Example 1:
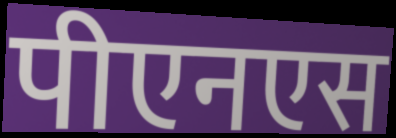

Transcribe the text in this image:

पीएनएस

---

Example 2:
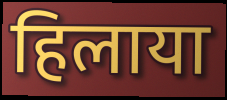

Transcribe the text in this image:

हिलाया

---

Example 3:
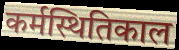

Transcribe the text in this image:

कर्मस्थितिकाल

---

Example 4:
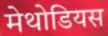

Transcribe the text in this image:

मेथोडियस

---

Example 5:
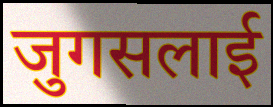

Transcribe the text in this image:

जुगसलाई